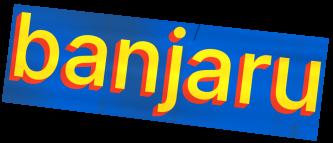
banjaru